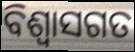
ବିଶ୍ଵାସଗତ